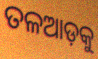
ତଳଆଡ଼କୁ